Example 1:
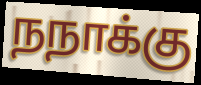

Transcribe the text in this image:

நநாக்கு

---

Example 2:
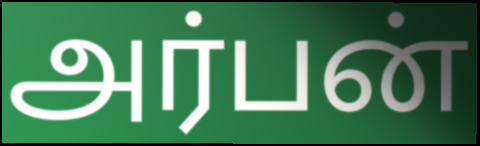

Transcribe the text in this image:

அர்பன்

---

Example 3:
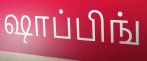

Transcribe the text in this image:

ஷாப்பிங்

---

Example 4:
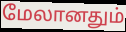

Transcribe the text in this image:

மேலானதும்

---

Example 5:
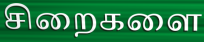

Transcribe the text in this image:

சிறைகளை